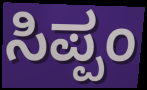
ಸಿಪ್ಪಂ